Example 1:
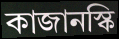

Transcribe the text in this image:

কাজানস্কি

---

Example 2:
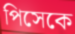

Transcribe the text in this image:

পিসেকে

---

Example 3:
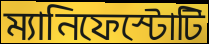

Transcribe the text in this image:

ম্যানিফেস্টোটি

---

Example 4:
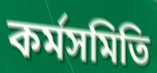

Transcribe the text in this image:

কর্মসমিতি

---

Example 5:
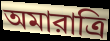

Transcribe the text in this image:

অমারাত্রি